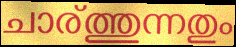
ചാര്ത്തുന്നതും